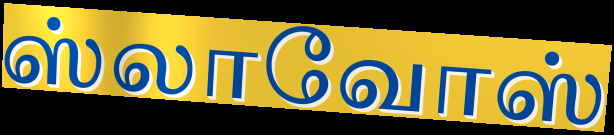
ஸ்லாவோஸ்